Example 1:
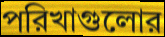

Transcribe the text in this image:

পরিখাগুলোর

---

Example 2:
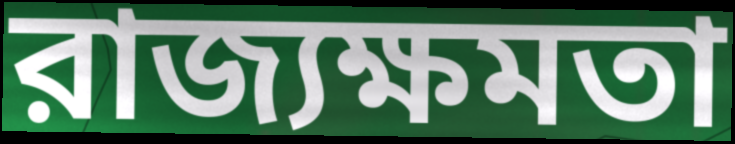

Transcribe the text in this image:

রাজ্যক্ষমতা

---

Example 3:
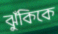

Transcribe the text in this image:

ঝুঁকিকে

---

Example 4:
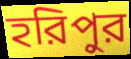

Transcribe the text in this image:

হরিপুর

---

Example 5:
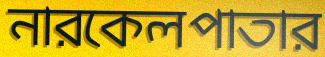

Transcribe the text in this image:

নারকেলপাতার